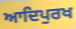
ਆਦਿਪੁਰਖ